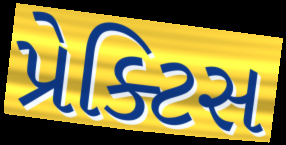
પ્રેક્ટિસ